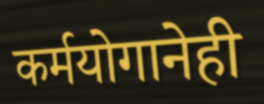
कर्मयोगानेही